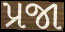
પ્રજા